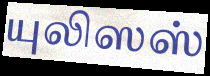
யுலிஸஸ்